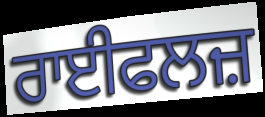
ਰਾਈਫਲਜ਼